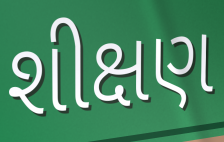
શીક્ષણ